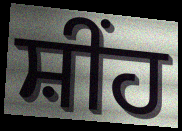
ਸ਼ੀਂਹ